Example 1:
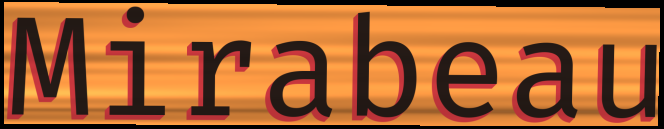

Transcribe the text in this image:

Mirabeau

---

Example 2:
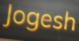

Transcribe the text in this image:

Jogesh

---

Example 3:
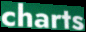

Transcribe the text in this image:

charts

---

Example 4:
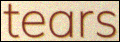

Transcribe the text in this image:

tears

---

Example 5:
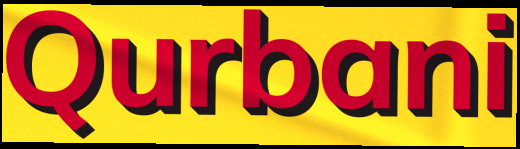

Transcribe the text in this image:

Qurbani